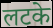
लटके